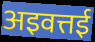
अइवत्तई